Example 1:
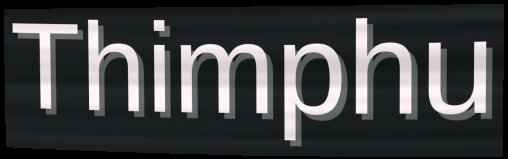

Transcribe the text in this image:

Thimphu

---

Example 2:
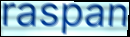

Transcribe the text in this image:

raspan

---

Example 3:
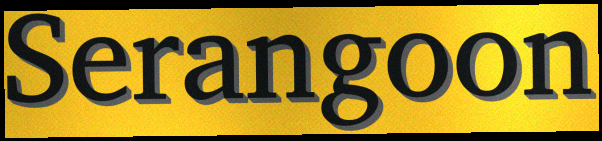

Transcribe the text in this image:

Serangoon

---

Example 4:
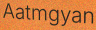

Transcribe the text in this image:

Aatmgyan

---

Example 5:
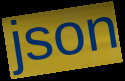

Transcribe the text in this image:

json